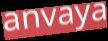
anvaya